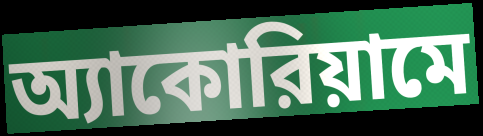
অ্যাকোরিয়ামে